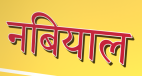
नबियाल